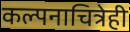
कल्पनाचित्रेही